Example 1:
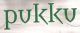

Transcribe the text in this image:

pukku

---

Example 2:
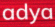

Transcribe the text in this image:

adya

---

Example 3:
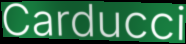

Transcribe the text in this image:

Carducci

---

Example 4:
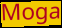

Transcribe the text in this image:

Moga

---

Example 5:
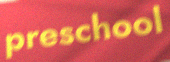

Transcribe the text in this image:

preschool